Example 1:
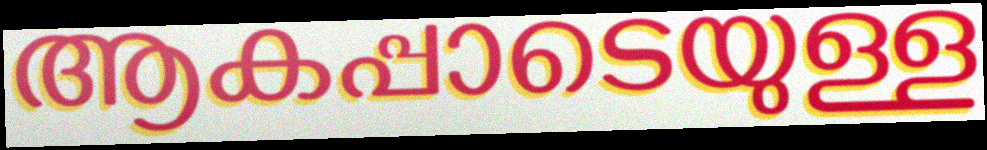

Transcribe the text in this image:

ആകപ്പാടെയുള്ള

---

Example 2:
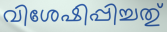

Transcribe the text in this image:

വിശേഷിപ്പിച്ചതു്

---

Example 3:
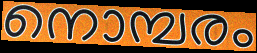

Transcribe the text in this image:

നൊമ്പരം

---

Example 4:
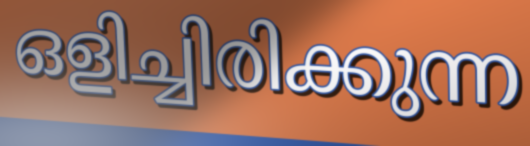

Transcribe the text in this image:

ഒളിച്ചിരിക്കുന്ന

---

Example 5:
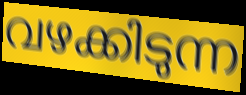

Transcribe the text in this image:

വഴക്കിടുന്ന